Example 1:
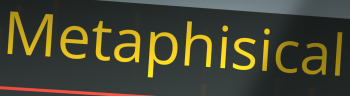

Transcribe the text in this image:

Metaphisical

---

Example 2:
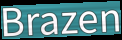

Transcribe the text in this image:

Brazen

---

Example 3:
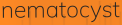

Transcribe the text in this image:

nematocyst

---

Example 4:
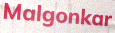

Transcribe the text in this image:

Malgonkar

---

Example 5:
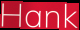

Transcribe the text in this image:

Hank